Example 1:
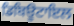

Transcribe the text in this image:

ਡਿਬਿਊਟਾਇਲ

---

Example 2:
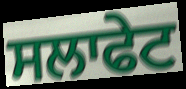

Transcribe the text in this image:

ਸਲਾਫੇਟ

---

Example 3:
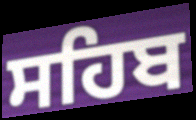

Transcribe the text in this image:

ਸਹਿਬ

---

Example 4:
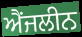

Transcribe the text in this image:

ਐਂਜਲੀਨ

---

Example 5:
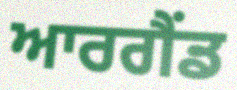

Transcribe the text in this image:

ਆਰਗੈਂਡ